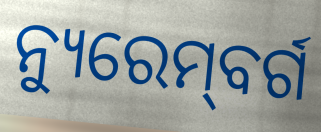
ନ୍ୟୁରେମ୍‌ବର୍ଗ